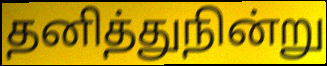
தனித்துநின்று